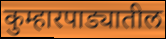
कुम्हारपाड्यातील